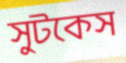
সুটকেস